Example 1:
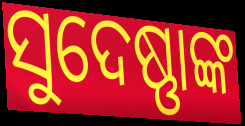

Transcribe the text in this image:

ସୁଦେଷ୍ଣାଙ୍କ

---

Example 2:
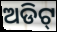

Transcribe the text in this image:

ଅଡିଟ୍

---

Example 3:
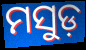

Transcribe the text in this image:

ମସୁଡ଼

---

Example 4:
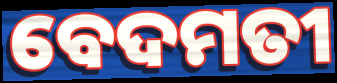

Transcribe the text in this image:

ବେଦମତୀ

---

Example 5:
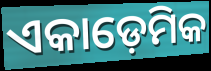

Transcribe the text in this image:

ଏକାଡ଼େମିକ